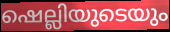
ഷെല്ലിയുടെയും